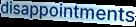
disappointments